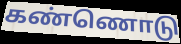
கண்ணொடு